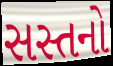
સસ્તનો